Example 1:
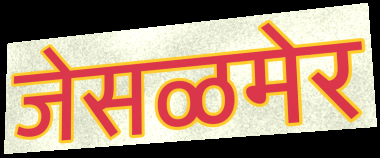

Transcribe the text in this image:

जेसळमेर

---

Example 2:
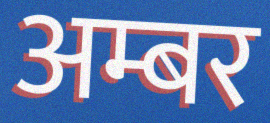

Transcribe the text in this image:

अम्बर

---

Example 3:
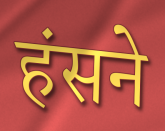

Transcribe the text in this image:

हंसने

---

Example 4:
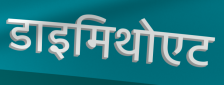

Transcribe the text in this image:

डाइमिथोएट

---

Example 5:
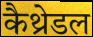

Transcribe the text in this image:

कैथ्रेडल